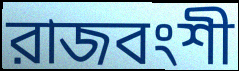
রাজবংশী